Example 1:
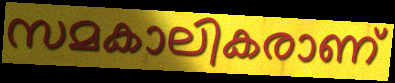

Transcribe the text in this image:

സമകാലികരാണ്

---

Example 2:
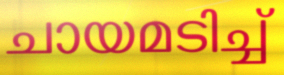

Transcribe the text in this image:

ചായമടിച്ച്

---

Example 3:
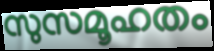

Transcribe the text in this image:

സുസമൂഹതം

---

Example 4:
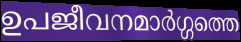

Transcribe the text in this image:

ഉപജീവനമാർഗ്ഗത്തെ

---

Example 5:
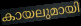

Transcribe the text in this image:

കായലുമായി